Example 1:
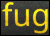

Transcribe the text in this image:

fug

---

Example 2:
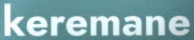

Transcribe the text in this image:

keremane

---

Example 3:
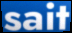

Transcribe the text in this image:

sait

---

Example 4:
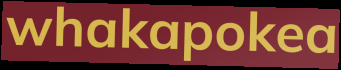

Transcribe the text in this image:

whakapokea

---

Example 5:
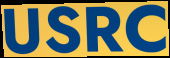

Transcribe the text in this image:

USRC